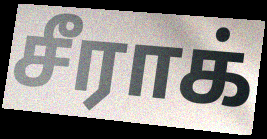
சீராக்